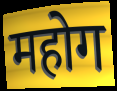
महोग